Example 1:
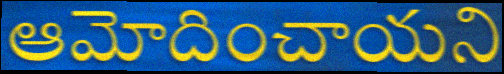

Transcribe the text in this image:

ఆమోదించాయని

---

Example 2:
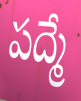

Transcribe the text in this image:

పద్మే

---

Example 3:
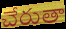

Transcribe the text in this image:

చేరుతా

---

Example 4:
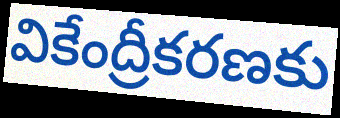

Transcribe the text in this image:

వికేంద్రీకరణకు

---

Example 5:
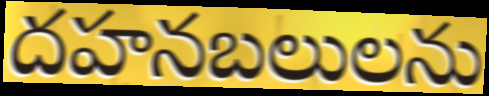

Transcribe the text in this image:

దహనబలులను